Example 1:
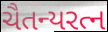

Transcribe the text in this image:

ચૈતન્યરત્ન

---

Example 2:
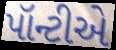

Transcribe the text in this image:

પૉન્ટીએ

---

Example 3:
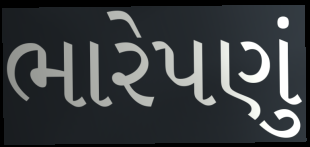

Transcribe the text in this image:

ભારેપણું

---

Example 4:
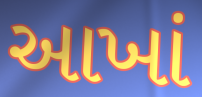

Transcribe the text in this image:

આખાં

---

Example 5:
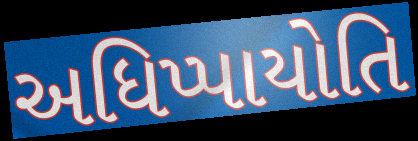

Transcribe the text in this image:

અધિપ્પાયોતિ